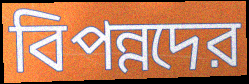
বিপন্নদের